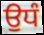
ਉਧੰ